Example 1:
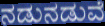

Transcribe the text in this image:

ನಡುನಡುವೆ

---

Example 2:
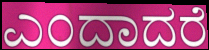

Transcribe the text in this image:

ಎಂದಾದರೆ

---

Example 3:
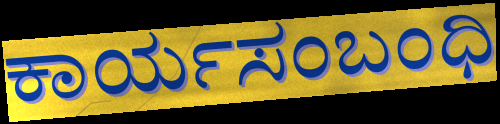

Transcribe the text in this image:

ಕಾರ್ಯಸಂಬಂಧಿ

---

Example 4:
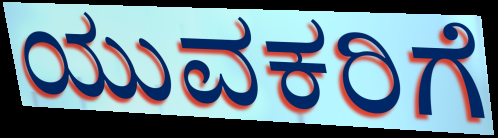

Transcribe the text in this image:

ಯುವಕರಿಗೆ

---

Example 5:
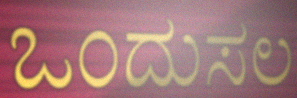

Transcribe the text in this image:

ಒಂದುಸಲ